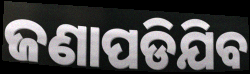
ଜଣାପଡିଯିବ